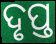
ଦୃପ୍ତ